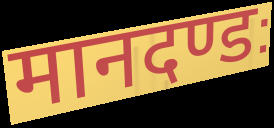
मानदण्डः